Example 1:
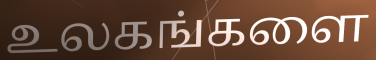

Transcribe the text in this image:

உலகங்களை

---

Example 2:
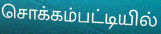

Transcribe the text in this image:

சொக்கம்பட்டியில்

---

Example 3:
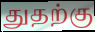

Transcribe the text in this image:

துதற்கு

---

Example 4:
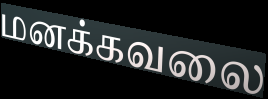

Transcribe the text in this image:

மனக்கவலை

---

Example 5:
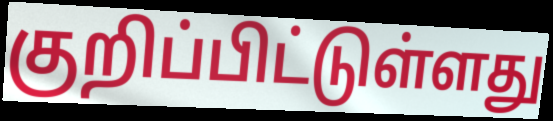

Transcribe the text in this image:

குறிப்பிட்டுள்ளது